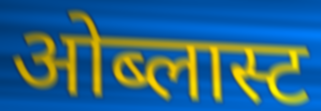
ओब्लास्ट